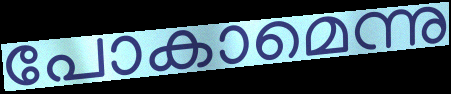
പോകാമെന്നു